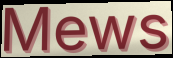
Mews